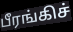
பீரங்கிச்